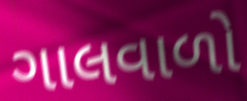
ગાલવાળો